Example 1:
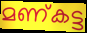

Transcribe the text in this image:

മണ്കട്ട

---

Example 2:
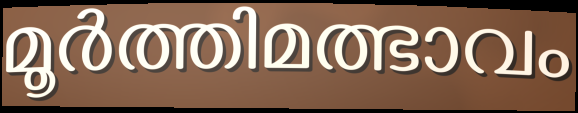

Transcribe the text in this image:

മൂർത്തിമത്ഭാവം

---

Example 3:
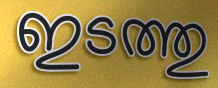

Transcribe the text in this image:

ഇടത്തു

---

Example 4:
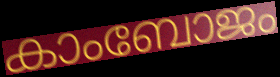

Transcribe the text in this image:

കാംബോജം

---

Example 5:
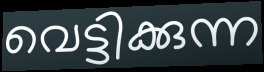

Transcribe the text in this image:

വെട്ടിക്കുന്ന